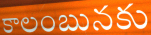
కాలంబునకు